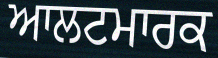
ਆਲਟਮਾਰਕ